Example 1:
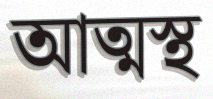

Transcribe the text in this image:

আত্মস্থ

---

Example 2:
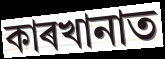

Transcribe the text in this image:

কাৰখানাত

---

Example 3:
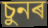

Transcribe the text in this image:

চুনৰ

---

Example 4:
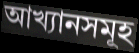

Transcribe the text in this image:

আখ্যানসমূহ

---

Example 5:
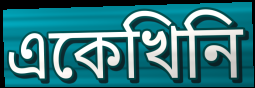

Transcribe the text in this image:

একেখিনি